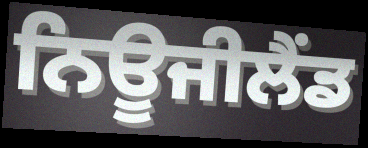
ਨਿਊਜੀਲੈਂਡ